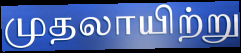
முதலாயிற்று